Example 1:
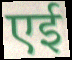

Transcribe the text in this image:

एई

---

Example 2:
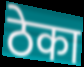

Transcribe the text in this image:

ठेका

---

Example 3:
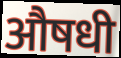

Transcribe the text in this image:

औषधी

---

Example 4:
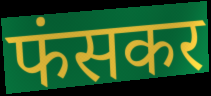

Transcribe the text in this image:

फंसकर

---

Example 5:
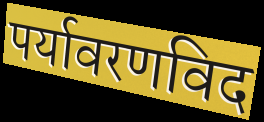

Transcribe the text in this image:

पर्यावरणविद